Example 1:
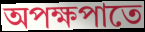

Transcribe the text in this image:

অপক্ষপাতে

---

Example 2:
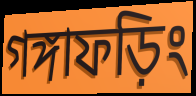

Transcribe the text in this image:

গঙ্গাফড়িং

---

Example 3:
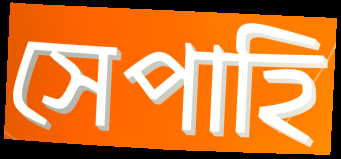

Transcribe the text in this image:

সেপাহি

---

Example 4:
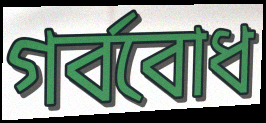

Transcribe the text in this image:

গর্ববোধ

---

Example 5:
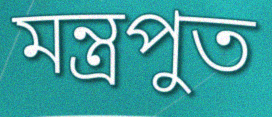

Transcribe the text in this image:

মন্ত্রপুত